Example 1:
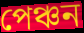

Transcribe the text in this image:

পেঞ্চন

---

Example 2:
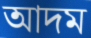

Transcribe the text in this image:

আদম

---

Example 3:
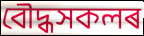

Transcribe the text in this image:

বৌদ্ধসকলৰ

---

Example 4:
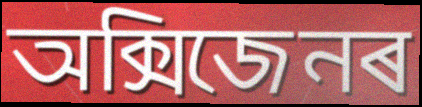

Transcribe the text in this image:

অক্সিজেনৰ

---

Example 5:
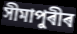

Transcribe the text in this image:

সীমাপুৰীৰ